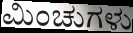
ಮಿಂಚುಗಳು